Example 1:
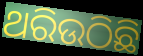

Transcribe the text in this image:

ଥରିଉଠିଛି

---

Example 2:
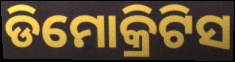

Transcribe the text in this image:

ଡିମୋକ୍ରିଟିସ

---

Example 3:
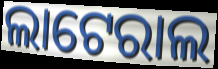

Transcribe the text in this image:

ଲାଟେରାଲ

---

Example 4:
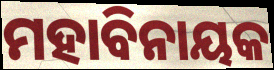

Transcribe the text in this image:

ମହାବିନାୟକ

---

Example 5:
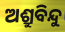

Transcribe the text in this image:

ଅଶ୍ରୁବିନ୍ଦୁ